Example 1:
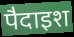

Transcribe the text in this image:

पैदाइश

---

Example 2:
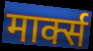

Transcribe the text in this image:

मार्क्स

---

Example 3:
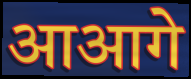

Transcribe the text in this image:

आआगे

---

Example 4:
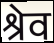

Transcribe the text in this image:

श्रेव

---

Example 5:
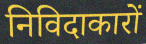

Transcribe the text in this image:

निविदाकारों